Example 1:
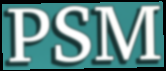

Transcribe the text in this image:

PSM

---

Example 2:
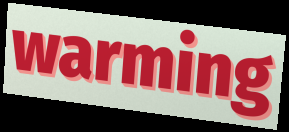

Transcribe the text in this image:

warming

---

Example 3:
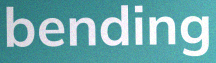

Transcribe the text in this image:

bending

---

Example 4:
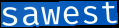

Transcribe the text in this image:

sawest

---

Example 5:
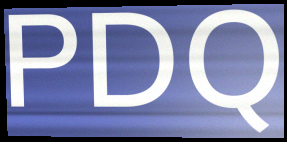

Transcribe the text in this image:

PDQ